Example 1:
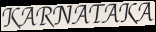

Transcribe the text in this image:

KARNATAKA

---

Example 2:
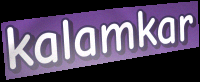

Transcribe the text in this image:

kalamkar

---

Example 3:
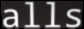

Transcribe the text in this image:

alls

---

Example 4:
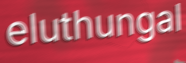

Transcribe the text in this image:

eluthungal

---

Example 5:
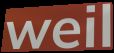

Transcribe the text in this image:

weil